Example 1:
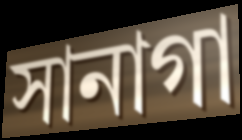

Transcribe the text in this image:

সানাগা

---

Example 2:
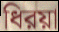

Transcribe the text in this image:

ধিরয়া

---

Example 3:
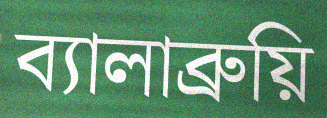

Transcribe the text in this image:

ব্যালাব্রুয়ি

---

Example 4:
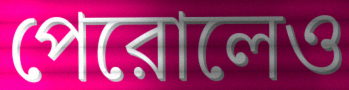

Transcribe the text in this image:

পেরোলেও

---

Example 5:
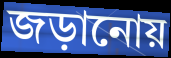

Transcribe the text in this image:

জড়ানোয়